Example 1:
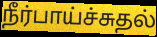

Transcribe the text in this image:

நீர்பாய்ச்சுதல்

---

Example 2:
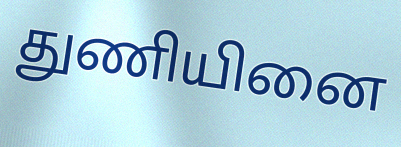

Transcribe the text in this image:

துணியினை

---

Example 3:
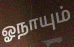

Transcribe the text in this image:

ஓநாயும்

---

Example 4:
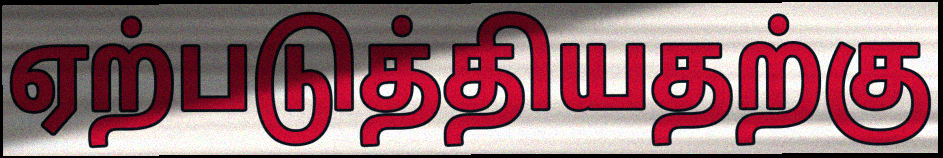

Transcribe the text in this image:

ஏற்படுத்தியதற்கு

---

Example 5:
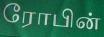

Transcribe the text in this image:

ரோபின்